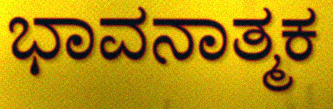
ಭಾವನಾತ್ಮಕ